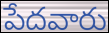
పేదవారు